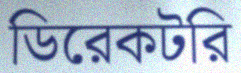
ডিরেকটরি